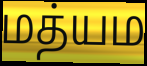
மத்யம